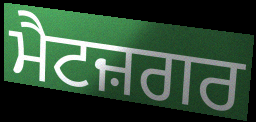
ਮੈਟਜ਼ਗਰ